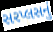
સરપ્લસનું